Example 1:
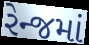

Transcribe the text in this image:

રેન્જમાં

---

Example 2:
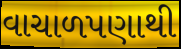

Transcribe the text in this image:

વાચાળપણાથી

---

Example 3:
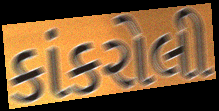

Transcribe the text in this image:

કાંકરોલી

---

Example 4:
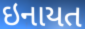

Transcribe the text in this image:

ઇનાયત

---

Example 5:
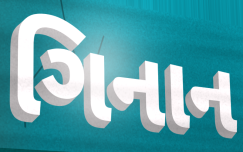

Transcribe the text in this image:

ગિનાન